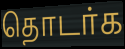
தொடர்க